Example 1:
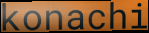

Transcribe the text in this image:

konachi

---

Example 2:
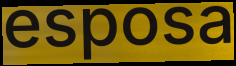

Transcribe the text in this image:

esposa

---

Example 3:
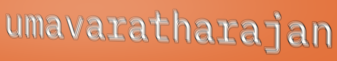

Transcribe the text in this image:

umavaratharajan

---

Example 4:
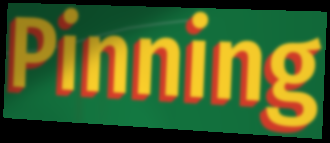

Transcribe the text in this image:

Pinning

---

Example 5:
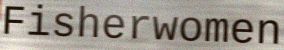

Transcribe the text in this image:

Fisherwomen